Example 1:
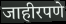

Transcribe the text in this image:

जाहीरपणे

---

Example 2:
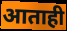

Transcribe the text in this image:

आताही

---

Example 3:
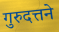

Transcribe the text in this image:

गुरुदत्तने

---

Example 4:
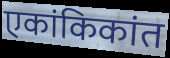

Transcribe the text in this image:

एकांकिकांत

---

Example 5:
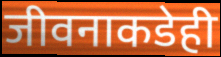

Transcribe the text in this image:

जीवनाकडेही